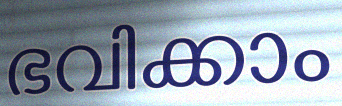
ഭവിക്കാം